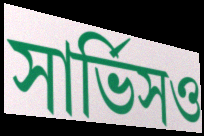
সার্ভিসও